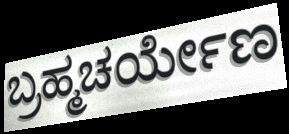
ಬ್ರಹ್ಮಚರ್ಯೇಣ